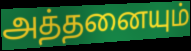
அத்தனையும்